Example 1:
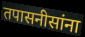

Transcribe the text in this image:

तपासनीसांना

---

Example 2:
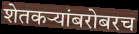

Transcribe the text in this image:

शेतकऱ्यांबरोबरच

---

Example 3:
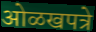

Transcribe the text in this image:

ओळखपत्रे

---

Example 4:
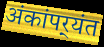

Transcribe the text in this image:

अंकांपर्यंत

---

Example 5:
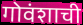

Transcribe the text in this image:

गोवंशाची